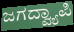
ಜಗದ್ವ್ಯಾಪಿ